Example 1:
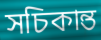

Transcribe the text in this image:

সচিকান্ত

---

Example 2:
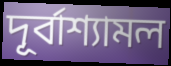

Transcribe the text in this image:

দূর্বাশ্যামল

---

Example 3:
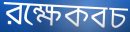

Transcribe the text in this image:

রক্ষেকবচ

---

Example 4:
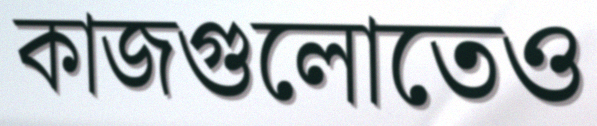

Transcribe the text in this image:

কাজগুলোতেও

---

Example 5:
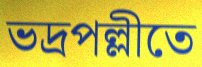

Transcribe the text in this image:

ভদ্রপল্লীতে